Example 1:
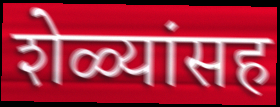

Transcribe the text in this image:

शेळ्यांसह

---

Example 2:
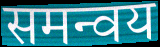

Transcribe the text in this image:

समन्वय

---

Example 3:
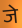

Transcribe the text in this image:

जे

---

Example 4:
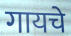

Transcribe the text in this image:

गायचे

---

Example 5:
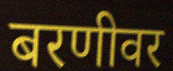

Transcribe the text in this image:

बरणीवर